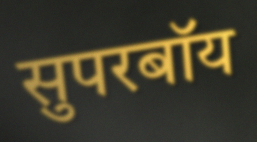
सुपरबॉय